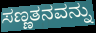
ಸಣ್ಣತನವನ್ನು